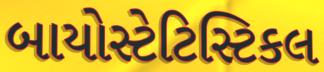
બાયોસ્ટેટિસ્ટિકલ